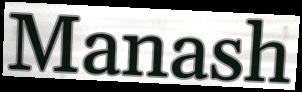
Manash